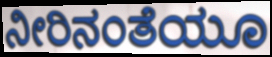
ನೀರಿನಂತೆಯೂ